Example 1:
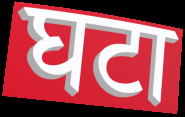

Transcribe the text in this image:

घटा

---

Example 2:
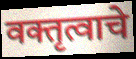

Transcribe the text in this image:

वक्तृत्वाचे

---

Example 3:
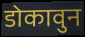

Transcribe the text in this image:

डोकावुन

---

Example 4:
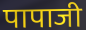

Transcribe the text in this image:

पापाजी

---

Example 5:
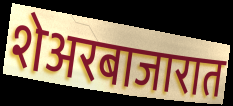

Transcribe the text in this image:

शेअरबाजारात